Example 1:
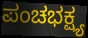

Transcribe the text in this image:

ಪಂಚಭಕ್ಷ್ಯ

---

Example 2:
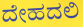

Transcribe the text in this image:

ದೇಹದಲಿ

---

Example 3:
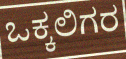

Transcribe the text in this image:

ಒಕ್ಕಲಿಗರ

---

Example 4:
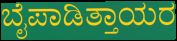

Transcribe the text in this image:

ಬೈಪಾಡಿತ್ತಾಯರ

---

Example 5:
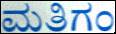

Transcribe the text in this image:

ಮತಿಗಂ